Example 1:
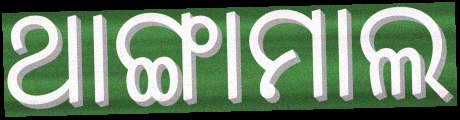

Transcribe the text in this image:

ଥାଙ୍ଗାମାଲ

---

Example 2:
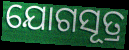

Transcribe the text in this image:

ଯୋଗସୂତ୍ର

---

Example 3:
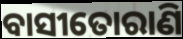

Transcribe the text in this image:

ବାସୀତୋରାଣି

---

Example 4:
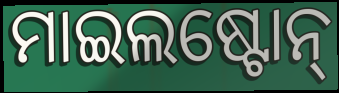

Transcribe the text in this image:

ମାଇଲଷ୍ଟୋନ୍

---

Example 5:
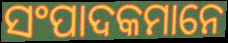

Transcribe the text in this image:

ସଂପାଦକମାନେ